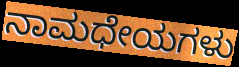
ನಾಮಧೇಯಗಳು